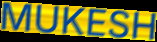
MUKESH